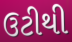
ઉટીથી